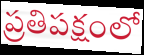
ప్రతిపక్షంలో